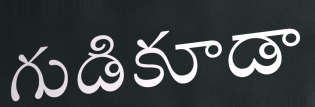
గుడికూడా